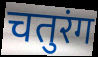
चतुरंग